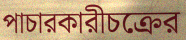
পাচারকারীচক্রের